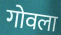
गोवला